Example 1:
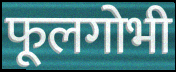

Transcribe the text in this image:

फूलगोभी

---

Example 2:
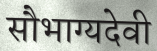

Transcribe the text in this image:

सौभाग्यदेवी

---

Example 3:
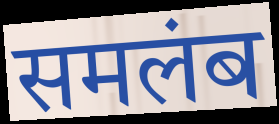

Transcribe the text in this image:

समलंब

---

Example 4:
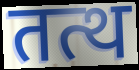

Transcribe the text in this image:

तत्थ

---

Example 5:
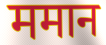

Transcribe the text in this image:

ममान